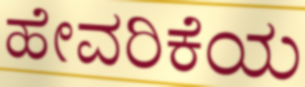
ಹೇವರಿಕೆಯ